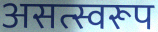
असत्स्वरूप